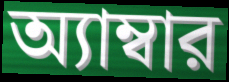
অ্যাম্বার